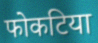
फोकटिया